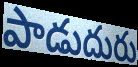
పాడుదురు